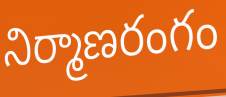
నిర్మాణరంగం